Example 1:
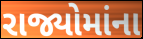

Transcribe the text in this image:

રાજ્યોમાંના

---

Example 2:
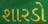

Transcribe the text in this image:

શારડો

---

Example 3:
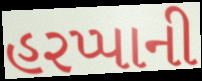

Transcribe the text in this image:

હરપ્પાની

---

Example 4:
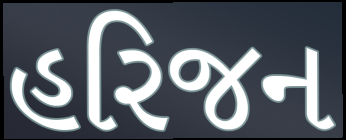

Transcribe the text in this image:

હરિજન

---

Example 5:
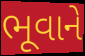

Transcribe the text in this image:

ભૂવાને